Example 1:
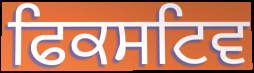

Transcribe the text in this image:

ਫਿਕਸਟਿਵ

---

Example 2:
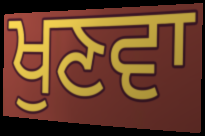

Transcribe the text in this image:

ਖੁਣਵਾ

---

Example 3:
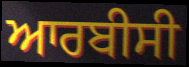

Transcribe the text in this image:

ਆਰਬੀਸੀ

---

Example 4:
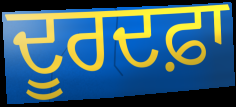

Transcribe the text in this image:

ਦੂਰਦਫ਼ਾ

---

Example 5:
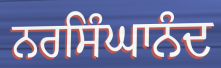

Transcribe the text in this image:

ਨਰਸਿੰਘਾਨੰਦ